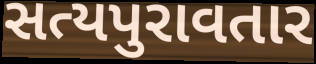
સત્યપુરાવતાર